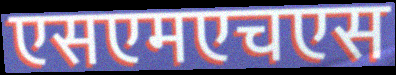
एसएमएचएस